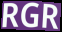
RGR